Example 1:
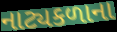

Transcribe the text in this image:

નાટ્યકળાના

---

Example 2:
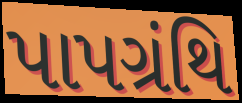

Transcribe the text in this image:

પાપગ્રંથિ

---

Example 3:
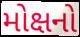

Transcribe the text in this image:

મોક્ષનો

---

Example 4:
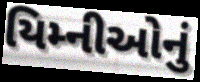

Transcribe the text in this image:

યિમ્નીઓનું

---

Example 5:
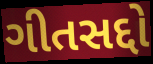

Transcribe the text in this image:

ગીતસદ્દો